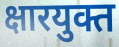
क्षारयुक्त